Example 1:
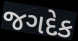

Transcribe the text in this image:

જગદેક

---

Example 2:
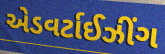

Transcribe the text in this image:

એડવર્ટાઈઝીંગ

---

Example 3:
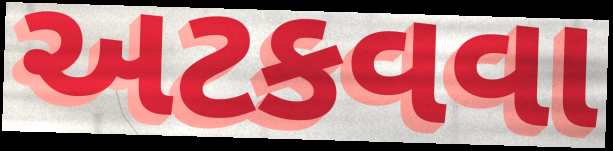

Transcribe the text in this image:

અટકવવા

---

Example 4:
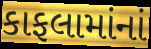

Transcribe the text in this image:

કાફલામાંનાં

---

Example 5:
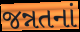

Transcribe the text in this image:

જન્નતનાં